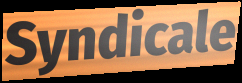
Syndicale